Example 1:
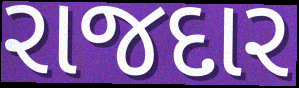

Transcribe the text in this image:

રાજદાર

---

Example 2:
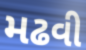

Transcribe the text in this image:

મઢવી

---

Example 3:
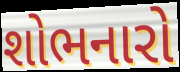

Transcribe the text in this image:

શોભનારો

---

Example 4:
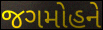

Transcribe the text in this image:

જગમોહને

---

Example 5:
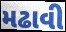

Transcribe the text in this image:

મઢાવી